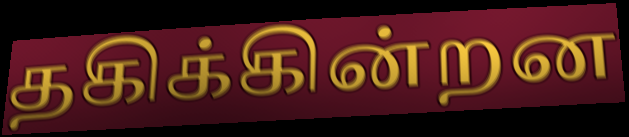
தகிக்கின்றன